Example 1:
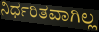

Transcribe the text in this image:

ನಿರ್ಧರಿತವಾಗಿಲ್ಲ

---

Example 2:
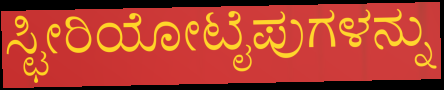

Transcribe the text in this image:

ಸ್ಟೀರಿಯೋಟೈಪುಗಳನ್ನು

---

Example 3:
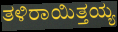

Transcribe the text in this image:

ತಳಿರಾಯಿತ್ತಯ್ಯ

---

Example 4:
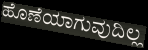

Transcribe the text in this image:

ಹೊಣೆಯಾಗುವುದಿಲ್ಲ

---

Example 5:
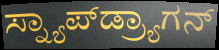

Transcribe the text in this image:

ಸ್ನ್ಯಾಪ್‌ಡ್ರ್ಯಾಗನ್